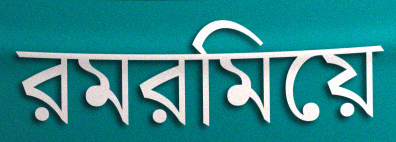
রমরমিয়ে